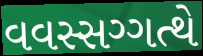
વવસ્સગ્ગત્થે